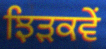
ਝਿੜਕਵੇਂ